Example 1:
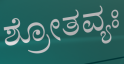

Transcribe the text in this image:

ಶ್ರೋತವ್ಯಃ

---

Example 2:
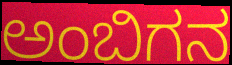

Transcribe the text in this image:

ಅಂಬಿಗನ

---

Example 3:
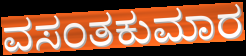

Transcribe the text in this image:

ವಸಂತಕುಮಾರ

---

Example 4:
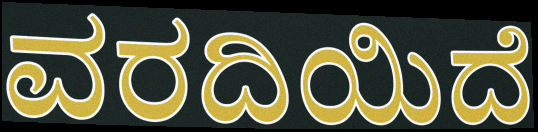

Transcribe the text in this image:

ವರದಿಯಿದೆ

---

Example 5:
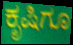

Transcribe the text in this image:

ಕೃಷಿಗೂ